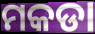
ମକଡା